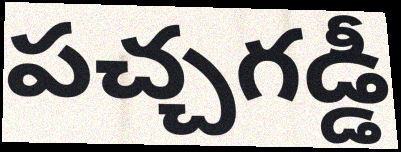
పచ్చగడ్డీ